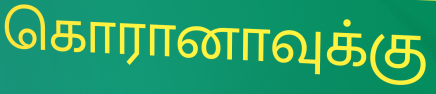
கொரானாவுக்கு